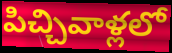
పిచ్చివాళ్లలో